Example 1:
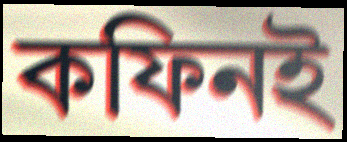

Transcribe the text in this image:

কফিনই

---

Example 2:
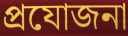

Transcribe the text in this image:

প্রযোজনা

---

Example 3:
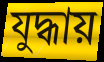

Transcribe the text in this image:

যুদ্ধায়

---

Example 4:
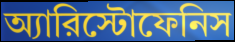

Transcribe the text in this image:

অ্যারিস্টোফেনিস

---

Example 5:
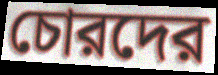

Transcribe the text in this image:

চোরদের